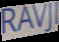
RAVJI